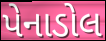
પેનાડોલ